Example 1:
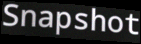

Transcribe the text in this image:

Snapshot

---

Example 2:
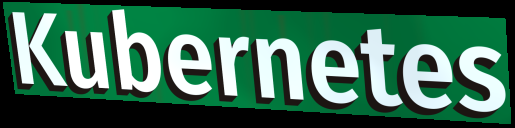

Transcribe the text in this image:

Kubernetes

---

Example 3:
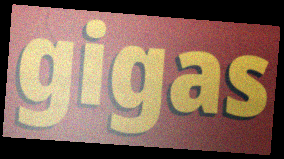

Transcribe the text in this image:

gigas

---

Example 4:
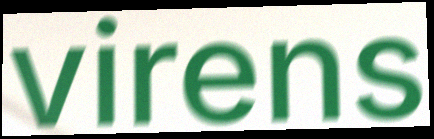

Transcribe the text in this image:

virens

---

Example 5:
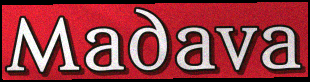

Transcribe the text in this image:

Madava